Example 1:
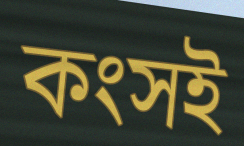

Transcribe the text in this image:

কংসই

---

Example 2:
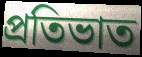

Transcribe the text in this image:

প্ৰতিভাত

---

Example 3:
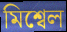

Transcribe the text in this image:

মিশ্বেল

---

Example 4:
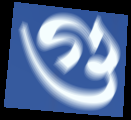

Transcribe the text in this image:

গু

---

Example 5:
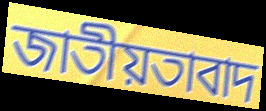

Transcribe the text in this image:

জাতীয়তাবাদ